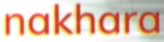
nakhara